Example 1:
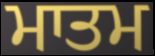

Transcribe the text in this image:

ਮਾਤਮ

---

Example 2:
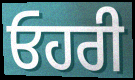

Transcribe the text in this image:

ਓਹਰੀ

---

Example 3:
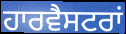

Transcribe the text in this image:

ਹਾਰਵੈਸਟਰਾਂ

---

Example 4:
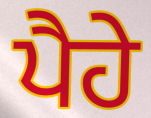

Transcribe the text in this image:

ਪੈਹੇ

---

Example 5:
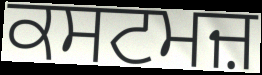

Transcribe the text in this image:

ਕਸਟਮਜ਼